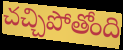
చచ్చిపోతోంది